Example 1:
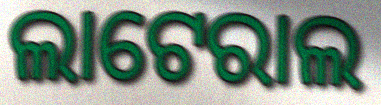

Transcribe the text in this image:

ଲାଟେରାଲ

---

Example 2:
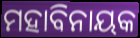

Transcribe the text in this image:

ମହାବିନାୟକ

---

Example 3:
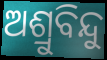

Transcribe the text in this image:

ଅଶ୍ରୁବିନ୍ଦୁ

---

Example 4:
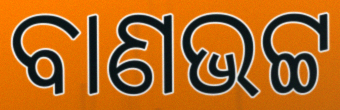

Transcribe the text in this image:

ବାଣଭଟ୍ଟ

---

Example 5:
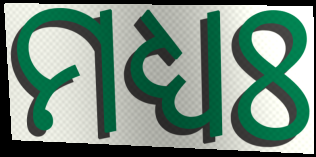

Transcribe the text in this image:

ମଧ୍ୟଃ